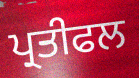
ਪ੍ਰਤੀਫਲ